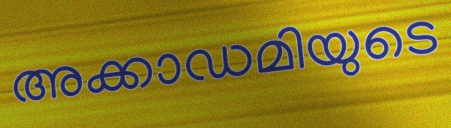
അക്കാഡമിയുടെ